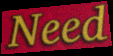
Need